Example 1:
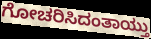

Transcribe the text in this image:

ಗೋಚರಿಸಿದಂತಾಯ್ತು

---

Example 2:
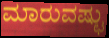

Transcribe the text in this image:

ಮಾರುವಷ್ಟು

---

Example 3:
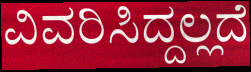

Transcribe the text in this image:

ವಿವರಿಸಿದ್ದಲ್ಲದೆ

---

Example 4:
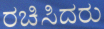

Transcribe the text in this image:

ರಚಿಸಿದರು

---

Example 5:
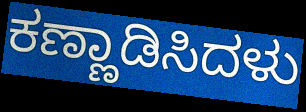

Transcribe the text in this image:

ಕಣ್ಣಾಡಿಸಿದಳು